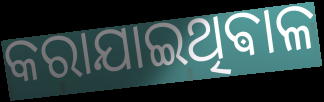
କରାଯାଇଥିଵାଳ